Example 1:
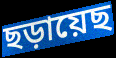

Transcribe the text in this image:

ছড়ায়েছ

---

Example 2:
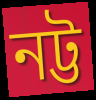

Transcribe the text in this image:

নট্ট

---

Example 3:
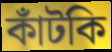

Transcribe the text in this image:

কাঁটকি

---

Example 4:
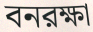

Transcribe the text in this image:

বনরক্ষা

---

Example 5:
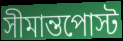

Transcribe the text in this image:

সীমান্তপোস্ট